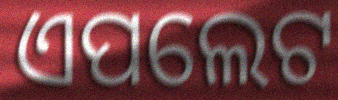
ଏପଲେଟ